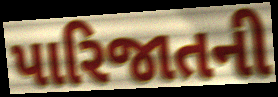
પારિજાતની